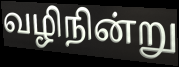
வழிநின்று